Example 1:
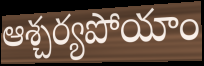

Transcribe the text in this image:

ఆశ్చర్యపోయాం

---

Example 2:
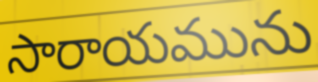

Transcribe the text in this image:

సారాయమును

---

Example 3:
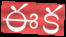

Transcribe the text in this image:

ఈక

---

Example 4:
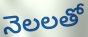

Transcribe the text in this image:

నెలలతో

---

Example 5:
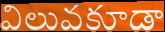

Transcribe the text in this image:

విలువకూడా